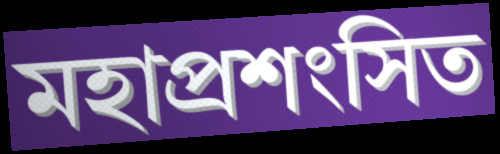
মহাপ্রশংসিত